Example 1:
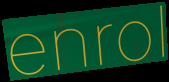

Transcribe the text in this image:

enrol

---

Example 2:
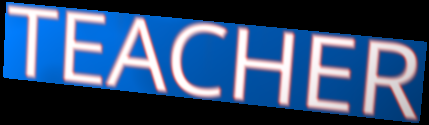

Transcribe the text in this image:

TEACHER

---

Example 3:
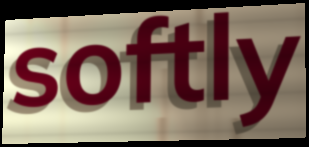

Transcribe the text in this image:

softly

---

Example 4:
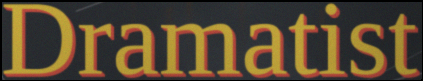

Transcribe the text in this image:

Dramatist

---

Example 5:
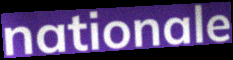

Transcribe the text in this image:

nationale